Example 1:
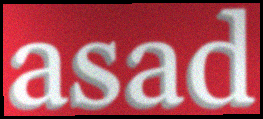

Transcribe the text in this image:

asad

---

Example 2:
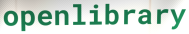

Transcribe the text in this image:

openlibrary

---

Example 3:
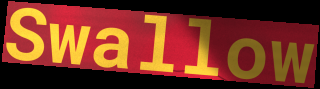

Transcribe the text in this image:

Swallow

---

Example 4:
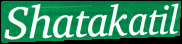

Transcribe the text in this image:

Shatakatil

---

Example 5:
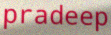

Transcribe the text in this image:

pradeep